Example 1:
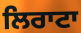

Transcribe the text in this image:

ਲਿਰਾਟਾ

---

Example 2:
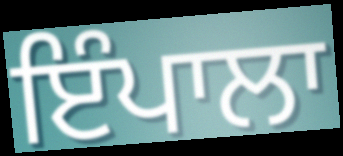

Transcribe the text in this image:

ਇੰਪਾਲਾ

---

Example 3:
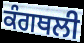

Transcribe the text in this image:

ਕੰਗਥਲੀ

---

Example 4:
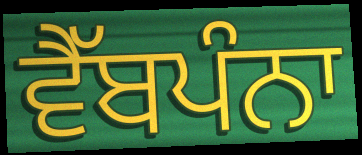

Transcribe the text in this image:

ਵੈੱਬਪੰਨਾ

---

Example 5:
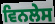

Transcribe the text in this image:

ਵਿਨਲੇਸ